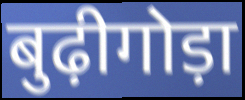
बुढ़ीगोड़ा